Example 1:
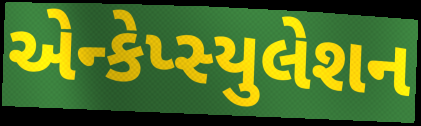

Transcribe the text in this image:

એન્કેપ્સ્યુલેશન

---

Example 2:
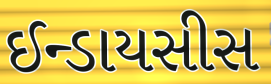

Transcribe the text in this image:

ઈન્ડાયસીસ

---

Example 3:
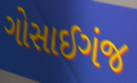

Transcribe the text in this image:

ગોસાઈગંજ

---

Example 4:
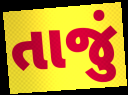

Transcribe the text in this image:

તાજું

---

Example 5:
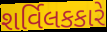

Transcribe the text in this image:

શર્વિલકકારે